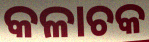
କଳାଚକ